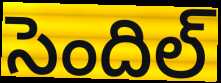
సెందిల్